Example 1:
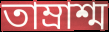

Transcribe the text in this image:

তাম্রাশ্ম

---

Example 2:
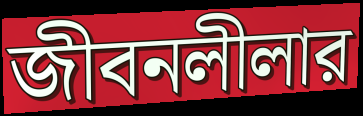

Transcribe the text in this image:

জীবনলীলার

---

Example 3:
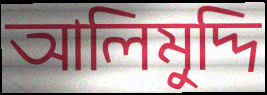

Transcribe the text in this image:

আলিমুদ্দি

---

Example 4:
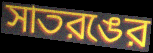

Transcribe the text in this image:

সাতরঙের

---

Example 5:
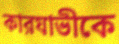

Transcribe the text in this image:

কারযাভীকে